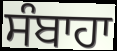
ਸੰਬਾਹਾ